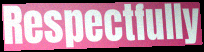
Respectfully